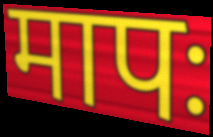
मापः